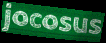
jocosus